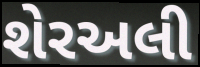
શેરઅલી